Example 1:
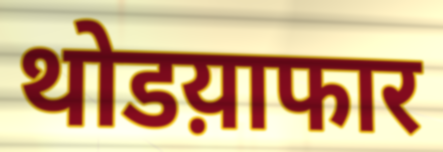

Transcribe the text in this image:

थोडय़ाफार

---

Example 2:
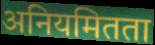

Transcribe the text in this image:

अनियमितता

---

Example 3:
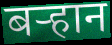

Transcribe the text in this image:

बऱ्हान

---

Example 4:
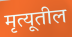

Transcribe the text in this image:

मृत्यूतील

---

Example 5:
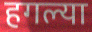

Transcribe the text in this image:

हगल्या